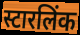
स्टारलिंक